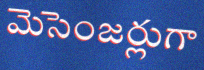
మెసెంజర్లుగా